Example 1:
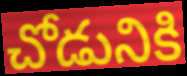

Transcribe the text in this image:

చోడునికి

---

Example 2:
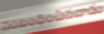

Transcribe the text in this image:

సంబంధించినవాడు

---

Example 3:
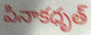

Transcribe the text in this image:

పినాకధృత్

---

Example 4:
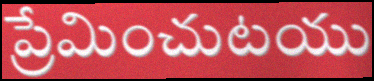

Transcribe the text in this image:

ప్రేమించుటయు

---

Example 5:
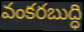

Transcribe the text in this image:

వంకరబుద్ధి